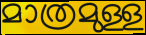
മാത്രമുള്ള